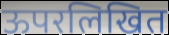
ऊपरलिखित